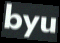
byu